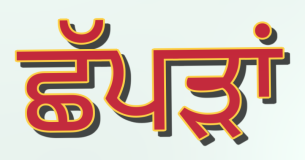
ਛੱਪੜਾਂ